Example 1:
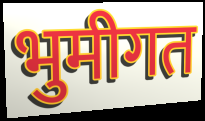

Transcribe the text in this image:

भुमीगत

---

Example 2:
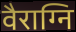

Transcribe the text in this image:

वैराग्नि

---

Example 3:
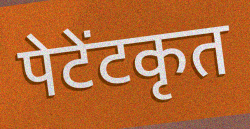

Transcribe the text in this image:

पेटेंटकृत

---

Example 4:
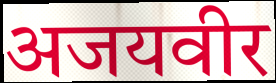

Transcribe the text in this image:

अजयवीर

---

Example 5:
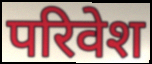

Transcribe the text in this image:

परिवेश